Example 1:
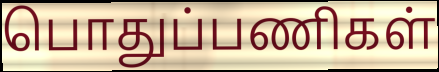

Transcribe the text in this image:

பொதுப்பணிகள்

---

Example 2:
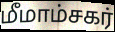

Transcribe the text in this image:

மீமாம்சகர்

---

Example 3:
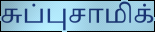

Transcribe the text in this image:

சுப்புசாமிக்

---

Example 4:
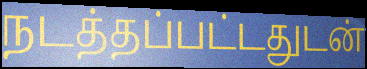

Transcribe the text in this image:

நடத்தப்பட்டதுடன்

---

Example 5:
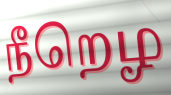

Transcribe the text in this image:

நீறெழ